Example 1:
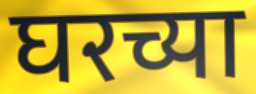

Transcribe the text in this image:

घरच्या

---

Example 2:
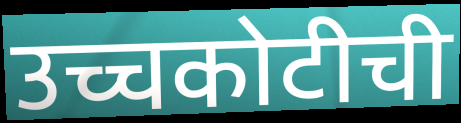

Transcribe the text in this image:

उच्चकोटीची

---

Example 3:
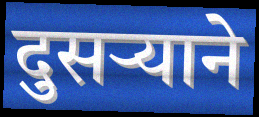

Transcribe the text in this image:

दुसर्‍याने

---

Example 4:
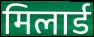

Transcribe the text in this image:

मिलार्ड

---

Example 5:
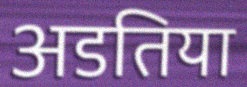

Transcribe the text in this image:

अडतिया